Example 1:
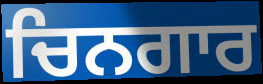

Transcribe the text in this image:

ਚਿਨਗਾਰ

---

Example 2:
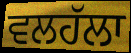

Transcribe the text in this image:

ਵਲਹੱਲਾ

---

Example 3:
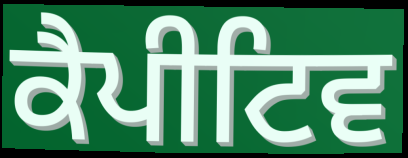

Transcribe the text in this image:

ਕੈਪੀਟਿਵ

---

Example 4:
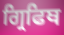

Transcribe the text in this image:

ਗ੍ਰਿਫਿਥ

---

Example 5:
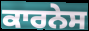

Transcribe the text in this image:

ਕਾਰਨੇਸ